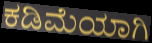
ಕಡಿಮೆಯಾಗಿ